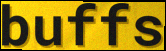
buffs